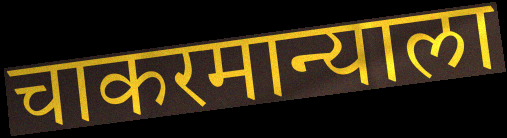
चाकरमान्याला